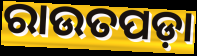
ରାଉତପଡ଼ା